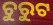
ଚୁରୁଟ